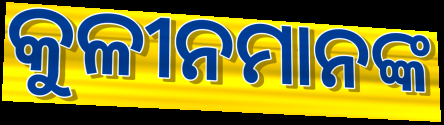
କୁଳୀନମାନଙ୍କ